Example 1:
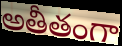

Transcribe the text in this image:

అతీతంగా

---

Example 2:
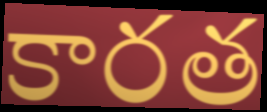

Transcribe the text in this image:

కారత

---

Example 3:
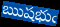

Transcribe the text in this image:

ఋషభుఁ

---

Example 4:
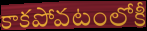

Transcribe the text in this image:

కాకపోవటంలోకీ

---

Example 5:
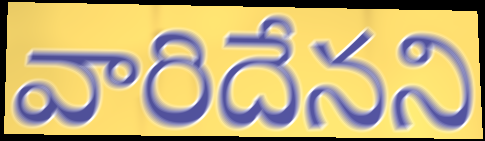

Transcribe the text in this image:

వారిదేనని